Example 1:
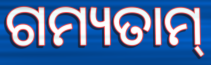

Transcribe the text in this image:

ଗମ୍ୟତାମ୍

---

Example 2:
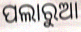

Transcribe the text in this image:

ପଲାରୁଆ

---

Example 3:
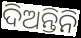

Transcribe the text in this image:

ଦିଅନ୍ତିନି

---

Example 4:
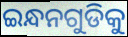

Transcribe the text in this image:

ଇନ୍ଧନଗୁଡିକୁ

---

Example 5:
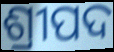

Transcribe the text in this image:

ଶ୍ରୀପଦ